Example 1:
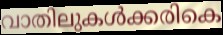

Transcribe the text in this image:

വാതിലുകൾക്കരികെ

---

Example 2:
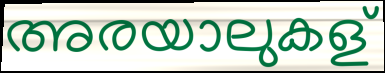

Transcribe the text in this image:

അരയാലുകള്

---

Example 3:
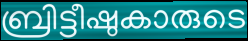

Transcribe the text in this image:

ബ്രിട്ടീഷുകാരുടെ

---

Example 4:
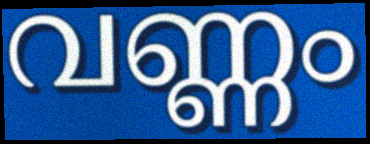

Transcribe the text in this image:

വണ്ണം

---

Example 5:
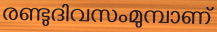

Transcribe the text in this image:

രണ്ടുദിവസംമുമ്പാണ്